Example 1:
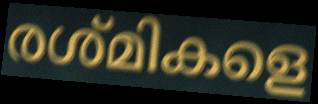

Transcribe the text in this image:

രശ്മികളെ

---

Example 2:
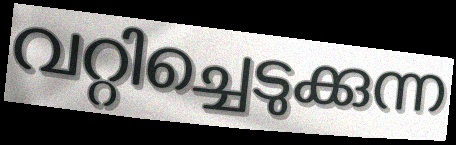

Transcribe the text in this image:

വറ്റിച്ചെടുക്കുന്ന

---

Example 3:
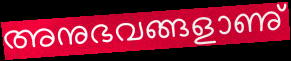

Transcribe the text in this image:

അനുഭവങ്ങളാണു്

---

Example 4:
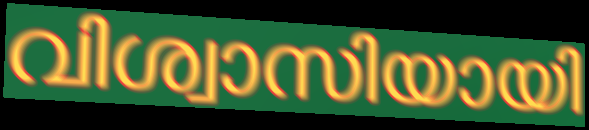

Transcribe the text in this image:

വിശ്വാസിയായി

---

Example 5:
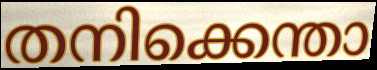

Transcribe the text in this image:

തനിക്കെന്താ